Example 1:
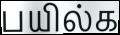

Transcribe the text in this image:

பயில்க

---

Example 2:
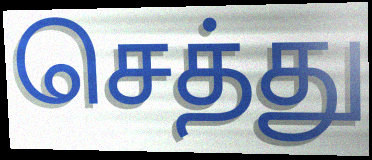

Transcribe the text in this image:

செத்து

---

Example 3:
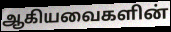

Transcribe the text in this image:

ஆகியவைகளின்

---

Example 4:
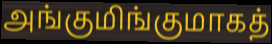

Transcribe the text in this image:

அங்குமிங்குமாகத்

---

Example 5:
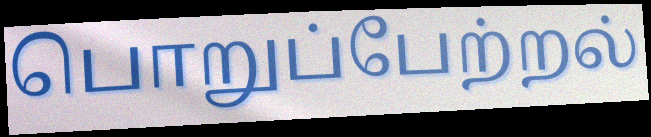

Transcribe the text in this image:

பொறுப்பேற்றல்